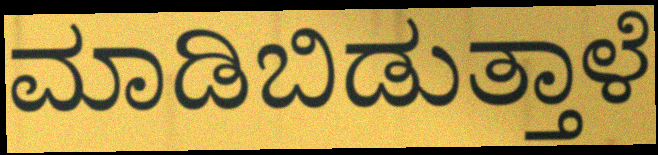
ಮಾಡಿಬಿಡುತ್ತಾಳೆ